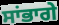
ਸਾਂਭਾਗੇ